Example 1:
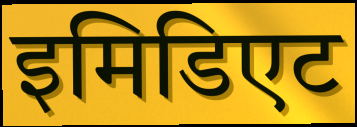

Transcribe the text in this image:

इमिडिएट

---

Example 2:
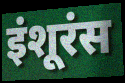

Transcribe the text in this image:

इंशूरंस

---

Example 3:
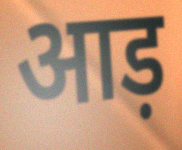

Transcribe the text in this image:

आड़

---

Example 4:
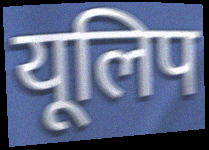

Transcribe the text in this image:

यूलिप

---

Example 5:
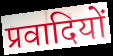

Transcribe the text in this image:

प्रवादियों